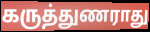
கருத்துணராது